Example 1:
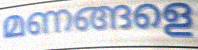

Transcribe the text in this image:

മണങ്ങളെ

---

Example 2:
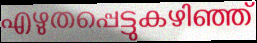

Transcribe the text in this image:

എഴുതപ്പെട്ടുകഴിഞ്ഞ്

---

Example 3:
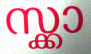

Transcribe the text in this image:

സ്ക്കാ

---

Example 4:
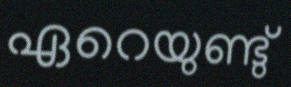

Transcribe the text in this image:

ഏറെയുണ്ടു്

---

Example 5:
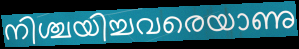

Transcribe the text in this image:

നിശ്ചയിച്ചവരെയാണു